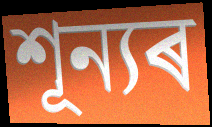
শূন্যৰ